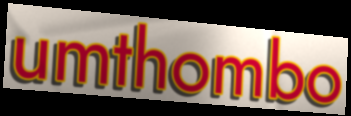
umthombo